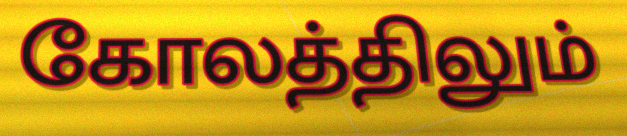
கோலத்திலும்